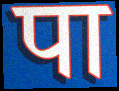
पा